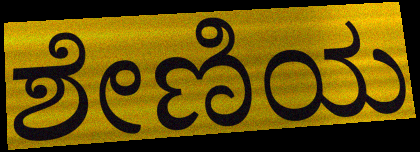
ಶೇಣಿಯ